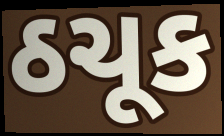
ઠચૂક